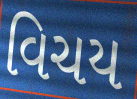
વિચય